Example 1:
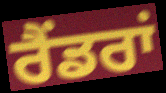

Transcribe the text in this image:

ਰੈਂਡਰਾਂ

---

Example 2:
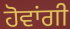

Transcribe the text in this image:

ਹੋਵਾਂਗੀ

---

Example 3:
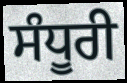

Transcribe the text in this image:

ਸੰਧੂਰੀ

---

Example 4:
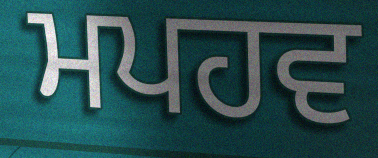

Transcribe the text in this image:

ਮਪਹਵ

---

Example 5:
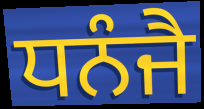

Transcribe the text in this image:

ਧਨੰਜੈ